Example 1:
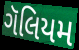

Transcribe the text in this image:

ગૅલિયમ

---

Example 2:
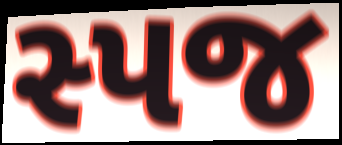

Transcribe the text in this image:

સ્પજ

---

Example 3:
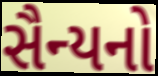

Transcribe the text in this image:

સૈન્યનો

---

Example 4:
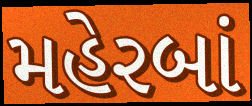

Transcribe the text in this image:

મહેરબાં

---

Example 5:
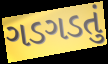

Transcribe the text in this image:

ગડગડતું